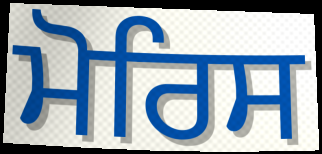
ਮੋਰਿਸ